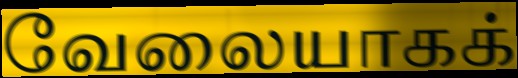
வேலையாகக்